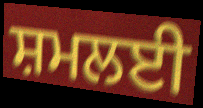
ਸ਼ਮਲਈ